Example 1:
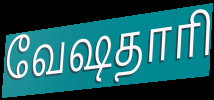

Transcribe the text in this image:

வேஷதாரி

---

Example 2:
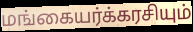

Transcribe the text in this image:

மங்கையர்க்கரசியும்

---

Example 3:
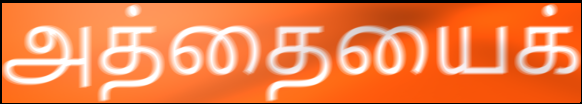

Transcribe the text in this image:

அத்தையைக்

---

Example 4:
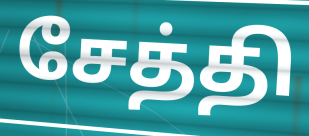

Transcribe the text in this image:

சேத்தி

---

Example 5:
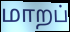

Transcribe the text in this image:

மாறப்